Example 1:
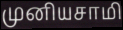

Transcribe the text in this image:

முனியசாமி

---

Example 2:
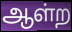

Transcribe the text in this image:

ஆள்ற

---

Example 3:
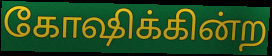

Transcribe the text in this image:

கோஷிக்கின்ற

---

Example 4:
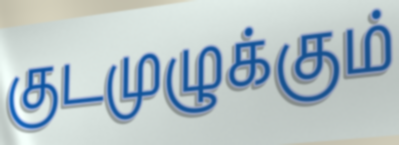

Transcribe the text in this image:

குடமுழுக்கும்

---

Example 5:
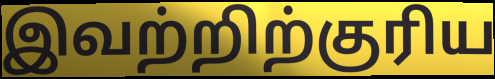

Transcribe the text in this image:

இவற்றிற்குரிய